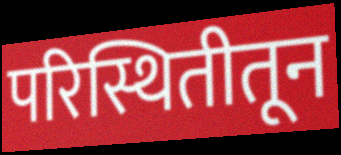
परिस्थितीतून